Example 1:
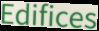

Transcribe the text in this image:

Edifices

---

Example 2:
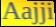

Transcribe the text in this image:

Aajji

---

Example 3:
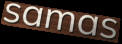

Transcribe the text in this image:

samas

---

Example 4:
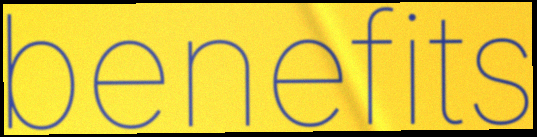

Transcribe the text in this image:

benefits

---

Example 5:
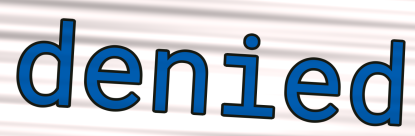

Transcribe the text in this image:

denied